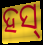
ହସ୍